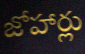
జోహార్లు